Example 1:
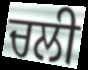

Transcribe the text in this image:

ਚਲੀ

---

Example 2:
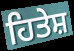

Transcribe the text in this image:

ਹਿਤੇਸ਼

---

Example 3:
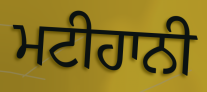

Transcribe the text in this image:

ਮਟੀਹਾਨੀ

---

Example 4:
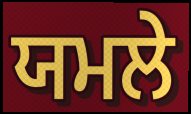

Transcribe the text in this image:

ਯਮਲੇ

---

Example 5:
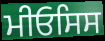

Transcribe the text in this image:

ਮੀਓਸਿਸ